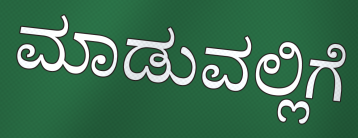
ಮಾಡುವಲ್ಲಿಗೆ